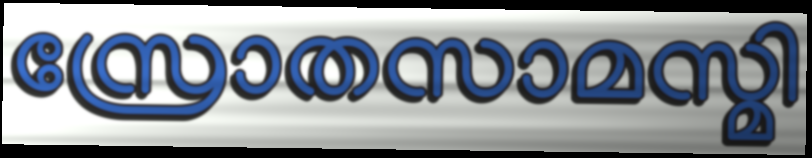
സ്രോതസാമസ്മി